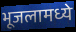
भूजलामध्ये